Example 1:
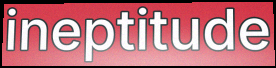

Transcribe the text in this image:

ineptitude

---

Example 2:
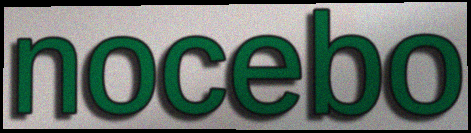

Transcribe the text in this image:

nocebo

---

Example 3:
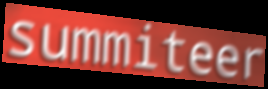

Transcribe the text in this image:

summiteer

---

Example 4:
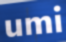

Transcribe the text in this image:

umi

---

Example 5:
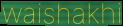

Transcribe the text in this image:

waishakhi